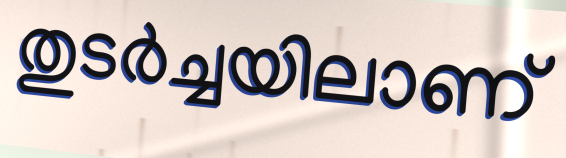
തുടർച്ചയിലാണ്